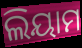
ଲିୟାମ